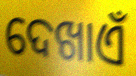
ଦେଖାଏଁ